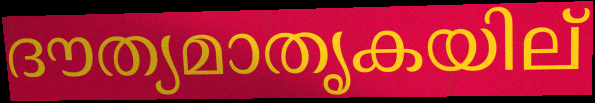
ദൗത്യമാതൃകയില്